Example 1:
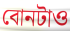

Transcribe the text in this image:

বোনটাও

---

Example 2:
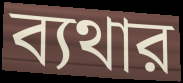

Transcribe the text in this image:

ব্যথার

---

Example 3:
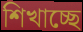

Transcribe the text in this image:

শিখাচ্ছে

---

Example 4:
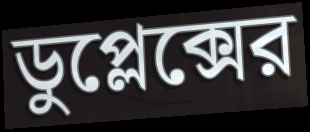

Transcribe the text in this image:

ডুপ্লেক্সের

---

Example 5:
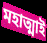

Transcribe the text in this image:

মহাত্মাই